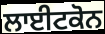
ਲਾਈਟਕੋਨ